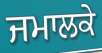
ਜਮਾਲਕੇ